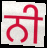
ਨੀ